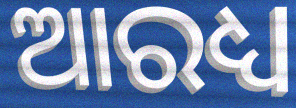
ଆରଧ୍ୟ